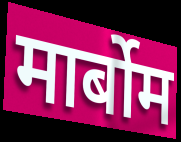
मार्बोम